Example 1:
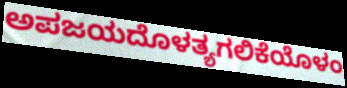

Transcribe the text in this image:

ಅಪಜಯದೊಳತ್ಯಗಲಿಕೆಯೊಳಂ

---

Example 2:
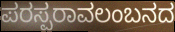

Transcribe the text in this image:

ಪರಸ್ಪರಾವಲಂಬನದ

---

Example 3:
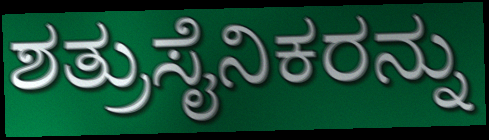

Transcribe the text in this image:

ಶತ್ರುಸೈನಿಕರನ್ನು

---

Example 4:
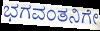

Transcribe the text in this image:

ಭಗವಂತನಿಗೇ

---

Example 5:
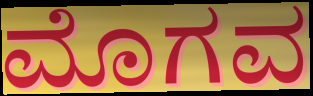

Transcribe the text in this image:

ಮೊಗವ